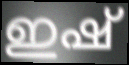
ഇഷ്